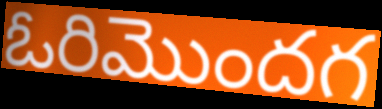
ఓరిమొందగ